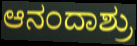
ಆನಂದಾಶ್ರು